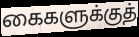
கைகளுக்குத்